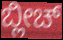
ಬ್ಲೀಚ್